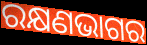
ରକ୍ଷଣଭାଗର